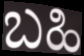
ಬಹಿ